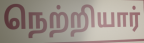
நெற்றியார்